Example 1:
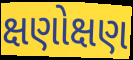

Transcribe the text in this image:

ક્ષણોક્ષણ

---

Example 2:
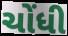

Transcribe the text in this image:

ચોંધી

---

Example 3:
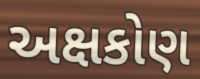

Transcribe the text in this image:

અક્ષકોણ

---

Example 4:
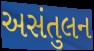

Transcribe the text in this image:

અસંતુલન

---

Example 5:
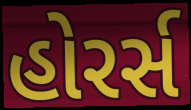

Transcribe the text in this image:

હોરર્સ